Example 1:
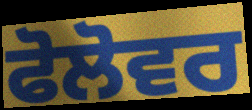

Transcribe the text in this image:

ਫੋਲੋਵਰ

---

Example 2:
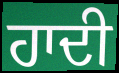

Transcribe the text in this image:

ਹਾਦੀ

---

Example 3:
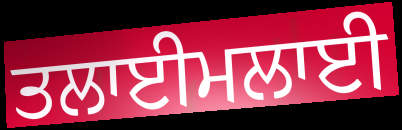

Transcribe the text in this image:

ਤਲਾਈਮਲਾਈ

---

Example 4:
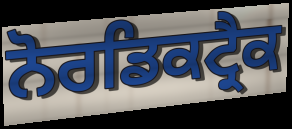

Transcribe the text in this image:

ਨੋਰਡਿਕਟ੍ਰੈਕ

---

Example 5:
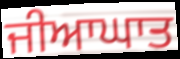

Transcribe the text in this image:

ਜੀਆਘਾਤ